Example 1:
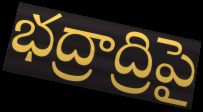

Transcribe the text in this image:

భద్రాద్రిపై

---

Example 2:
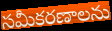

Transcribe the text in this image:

సమీకరణాలను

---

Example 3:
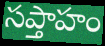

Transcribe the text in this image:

సప్తాహం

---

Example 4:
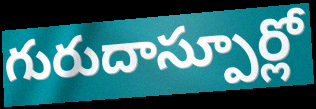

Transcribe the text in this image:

గురుదాస్పూర్లో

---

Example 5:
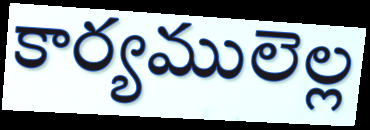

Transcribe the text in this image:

కార్యములెల్ల